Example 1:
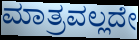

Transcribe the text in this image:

ಮಾತ್ರವಲ್ಲದೇ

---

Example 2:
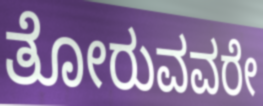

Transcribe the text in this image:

ತೋರುವವರೇ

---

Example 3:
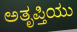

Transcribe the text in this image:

ಅತೃಪ್ತಿಯು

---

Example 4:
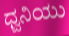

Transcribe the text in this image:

ಧ್ವನಿಯು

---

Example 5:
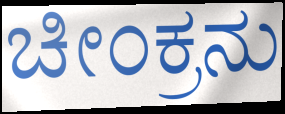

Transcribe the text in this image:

ಚೀಂಕ್ರನು